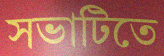
সভাটিতে